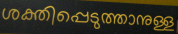
ശക്തിപ്പെടുത്താനുള്ള